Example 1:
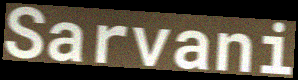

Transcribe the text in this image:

Sarvani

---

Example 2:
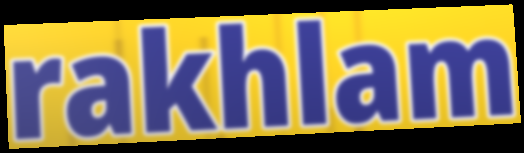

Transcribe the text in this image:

rakhlam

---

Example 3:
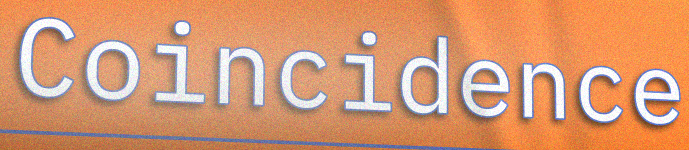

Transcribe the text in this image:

Coincidence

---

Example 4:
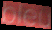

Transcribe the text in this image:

bleu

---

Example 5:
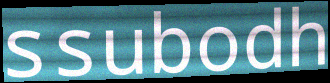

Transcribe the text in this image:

ssubodh